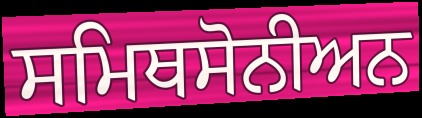
ਸਮਿਥਸੋਨੀਅਨ